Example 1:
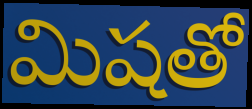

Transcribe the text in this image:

మిషతో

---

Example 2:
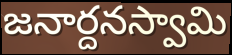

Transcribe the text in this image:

జనార్దనస్వామి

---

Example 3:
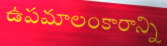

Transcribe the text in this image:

ఉపమాలంకారాన్ని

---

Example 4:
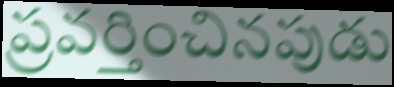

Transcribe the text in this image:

ప్రవర్తించినపుడు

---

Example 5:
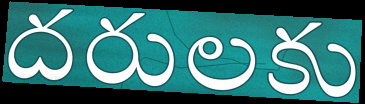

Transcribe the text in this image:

దరులకు